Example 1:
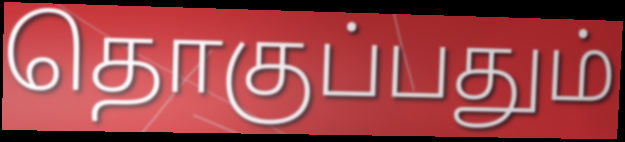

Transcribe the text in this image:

தொகுப்பதும்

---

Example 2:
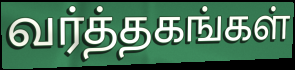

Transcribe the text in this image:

வர்த்தகங்கள்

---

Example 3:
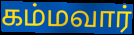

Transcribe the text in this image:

கம்மவார்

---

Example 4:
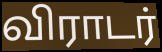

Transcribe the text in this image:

விராடர்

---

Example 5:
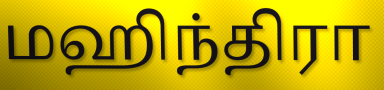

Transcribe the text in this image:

மஹிந்திரா